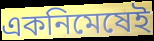
একনিমেষেই